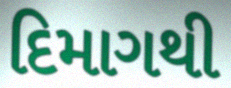
દિમાગથી